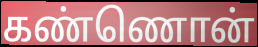
கண்ணொன்